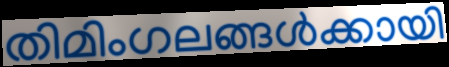
തിമിംഗലങ്ങൾക്കായി